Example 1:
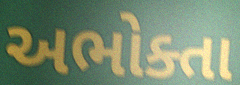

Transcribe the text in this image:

અભોક્તા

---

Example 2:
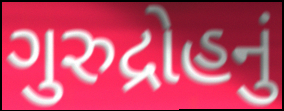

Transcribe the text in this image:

ગુરુદ્રોહનું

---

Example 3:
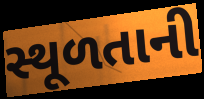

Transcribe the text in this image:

સ્થૂળતાની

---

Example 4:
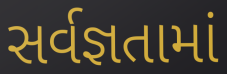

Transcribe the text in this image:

સર્વજ્ઞતામાં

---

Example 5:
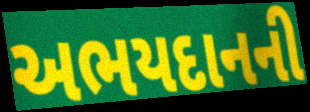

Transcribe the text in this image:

અભયદાનની